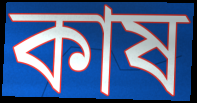
কাষ